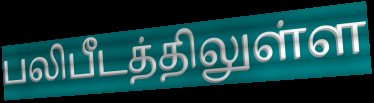
பலிபீடத்திலுள்ள